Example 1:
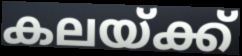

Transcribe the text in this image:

കലയ്ക്ക്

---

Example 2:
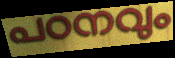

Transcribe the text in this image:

പഠനവും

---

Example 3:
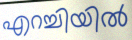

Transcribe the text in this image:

എറച്ചിയിൽ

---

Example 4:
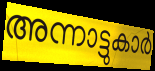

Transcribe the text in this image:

അന്നാട്ടുകാർ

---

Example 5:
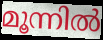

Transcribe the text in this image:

മൂന്നിൽ